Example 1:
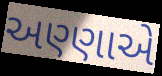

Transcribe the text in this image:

અણ્ણાએ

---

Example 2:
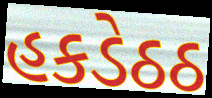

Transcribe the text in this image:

હકડેઠઠ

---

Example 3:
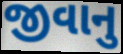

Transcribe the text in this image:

જીવાનુ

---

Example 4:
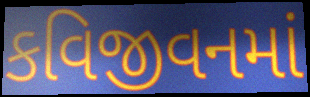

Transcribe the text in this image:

કવિજીવનમાં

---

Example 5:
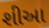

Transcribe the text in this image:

શીઆ